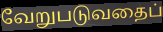
வேறுபடுவதைப்